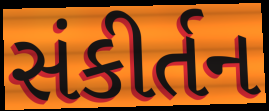
સંકીર્તન